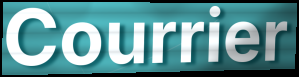
Courrier